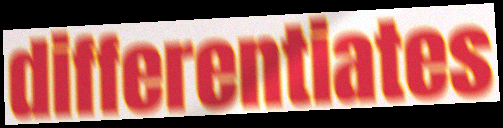
differentiates